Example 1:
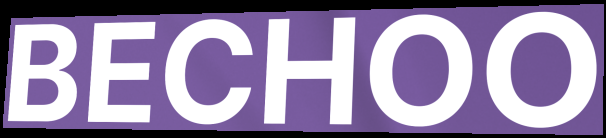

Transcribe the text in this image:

BECHOO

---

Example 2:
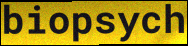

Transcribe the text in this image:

biopsych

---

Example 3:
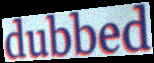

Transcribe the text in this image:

dubbed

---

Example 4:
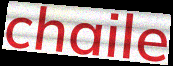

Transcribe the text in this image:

chaile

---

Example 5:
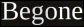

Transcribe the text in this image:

Begone